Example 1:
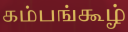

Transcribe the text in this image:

கம்பங்கூழ்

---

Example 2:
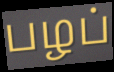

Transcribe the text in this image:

பழப்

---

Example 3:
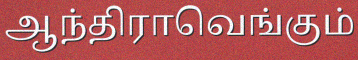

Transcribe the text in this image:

ஆந்திராவெங்கும்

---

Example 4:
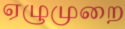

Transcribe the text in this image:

ஏழுமுறை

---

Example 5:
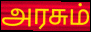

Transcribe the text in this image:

அரசும்